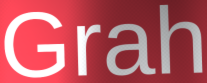
Grah